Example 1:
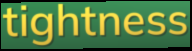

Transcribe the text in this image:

tightness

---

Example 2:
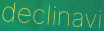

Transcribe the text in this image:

declinavi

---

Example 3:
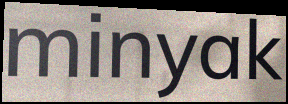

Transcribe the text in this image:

minyak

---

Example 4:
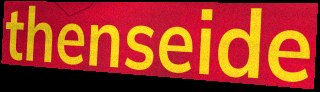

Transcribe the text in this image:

thenseide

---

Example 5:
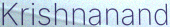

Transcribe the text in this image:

Krishnanand